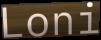
Loni